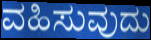
ವಹಿಸುವುದು